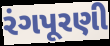
રંગપૂરણી